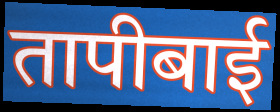
तापीबाई